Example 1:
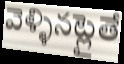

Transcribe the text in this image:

వెళ్ళినట్లైతే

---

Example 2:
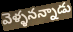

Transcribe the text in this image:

వెళ్ళనన్నాడు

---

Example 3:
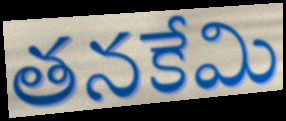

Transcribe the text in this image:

తనకేమి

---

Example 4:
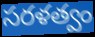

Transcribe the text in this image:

సరళత్వం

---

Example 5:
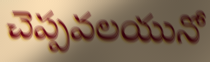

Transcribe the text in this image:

చెప్పవలయునో